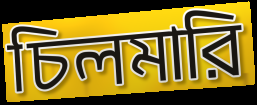
চিলমারি